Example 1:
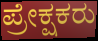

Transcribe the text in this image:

ಪ್ರೇಕ್ಷಕರು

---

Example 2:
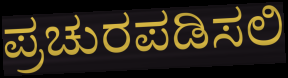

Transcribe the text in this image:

ಪ್ರಚುರಪಡಿಸಲಿ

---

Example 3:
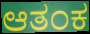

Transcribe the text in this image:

ಆತಂಕ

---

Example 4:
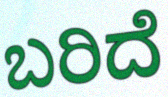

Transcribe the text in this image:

ಬರಿದೆ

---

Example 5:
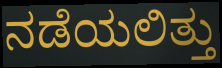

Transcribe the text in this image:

ನಡೆಯಲಿತ್ತು